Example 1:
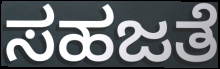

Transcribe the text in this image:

ಸಹಜತೆ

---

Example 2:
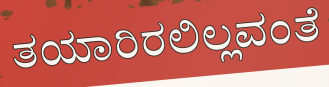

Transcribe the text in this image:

ತಯಾರಿರಲಿಲ್ಲವಂತೆ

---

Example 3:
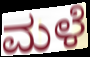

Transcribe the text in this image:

ಮಳೆ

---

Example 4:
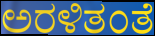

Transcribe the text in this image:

ಅರಳಿತಂತೆ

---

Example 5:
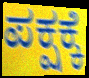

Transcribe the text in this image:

ಪಕ್ಷಕ್ಕೆ